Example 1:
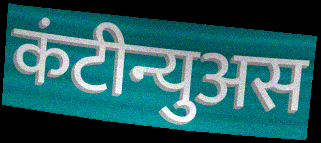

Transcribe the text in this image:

कंटीन्युअस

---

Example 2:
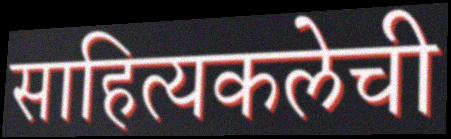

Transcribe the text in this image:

साहित्यकलेची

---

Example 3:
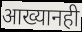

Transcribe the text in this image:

आख्यानही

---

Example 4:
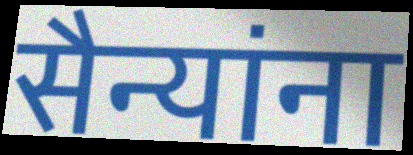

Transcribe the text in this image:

सैन्यांना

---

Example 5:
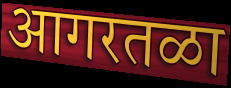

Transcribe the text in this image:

आगरतळा